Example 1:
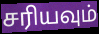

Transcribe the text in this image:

சரியவும்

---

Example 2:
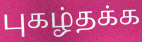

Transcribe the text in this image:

புகழ்தக்க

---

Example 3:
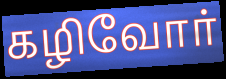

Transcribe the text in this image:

கழிவோர்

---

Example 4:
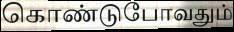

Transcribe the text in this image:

கொண்டுபோவதும்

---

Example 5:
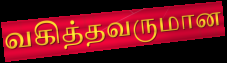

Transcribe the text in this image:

வகித்தவருமான